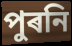
পুৰনি